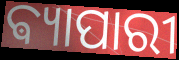
ଵ୍ୟାପାରୀ